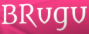
BRugu